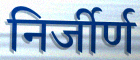
निर्जीर्ण